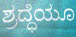
ಶ್ರದ್ಧೆಯೂ